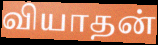
வியாதன்